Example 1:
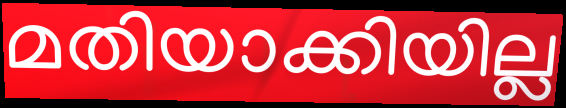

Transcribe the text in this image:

മതിയാക്കിയില്ല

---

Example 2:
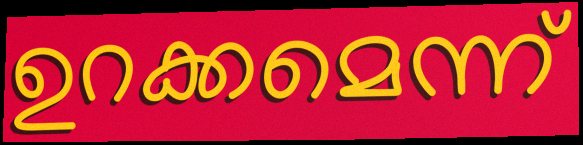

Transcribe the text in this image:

ഉറക്കമെന്ന്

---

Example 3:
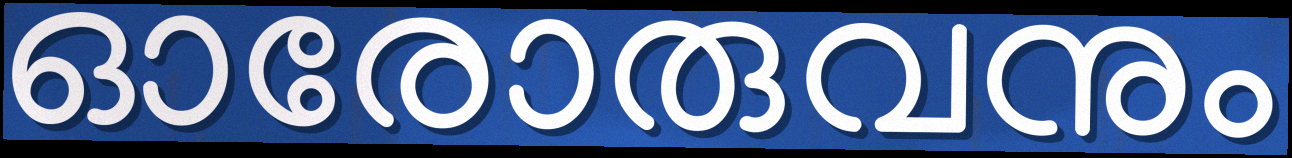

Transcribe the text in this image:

ഓരോരുവനും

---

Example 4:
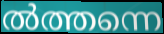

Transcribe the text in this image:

ൽത്തന്നെ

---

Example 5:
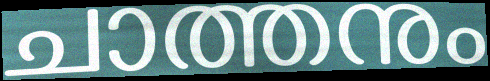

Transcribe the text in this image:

ചാത്തനും